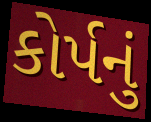
કોર્પનું